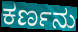
ಕರ್ಣನು